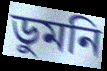
ডুমনি